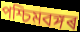
পশ্চিমবঙ্গৰ